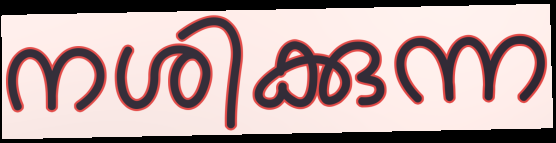
നശിക്കുന്ന